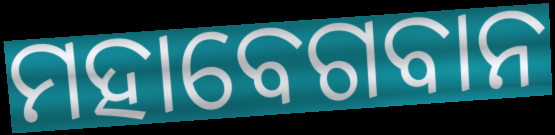
ମହାବେଗବାନ